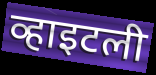
व्हाइटली